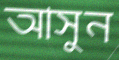
আসুন